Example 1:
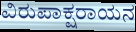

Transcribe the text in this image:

ವಿರುಪಾಕ್ಷರಾಯನ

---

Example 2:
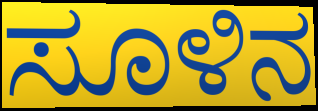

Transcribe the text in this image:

ಸೂಳಿನ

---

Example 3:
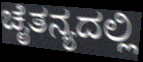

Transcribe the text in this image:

ಚೈತನ್ಯದಲ್ಲಿ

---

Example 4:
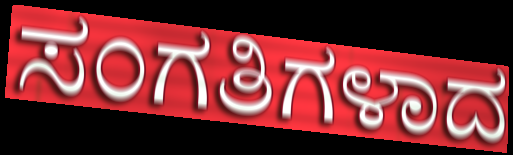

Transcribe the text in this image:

ಸಂಗತಿಗಳಾದ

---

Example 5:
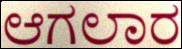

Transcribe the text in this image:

ಆಗಲಾರ